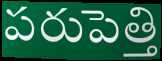
పరుపెత్తి